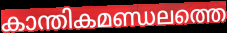
കാന്തികമണ്ഡലത്തെ